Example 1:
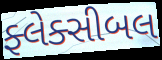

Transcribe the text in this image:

ફ્લેક્સીબલ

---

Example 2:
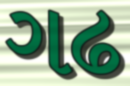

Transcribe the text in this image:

ગઢ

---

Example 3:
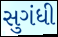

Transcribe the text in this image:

સુગંધી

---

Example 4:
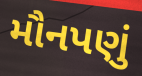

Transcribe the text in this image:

મૌનપણું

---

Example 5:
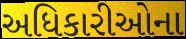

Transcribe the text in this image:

અધિકારીઓના